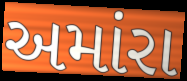
અમાંરા